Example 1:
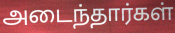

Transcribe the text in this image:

அடைந்தார்கள்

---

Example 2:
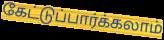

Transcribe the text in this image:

கேட்டுப்பார்க்கலாம்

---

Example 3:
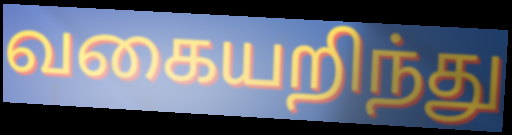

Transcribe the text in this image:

வகையறிந்து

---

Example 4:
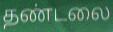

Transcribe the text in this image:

தண்டலை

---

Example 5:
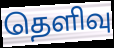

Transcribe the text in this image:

தெளிவு